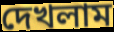
দেখলাম